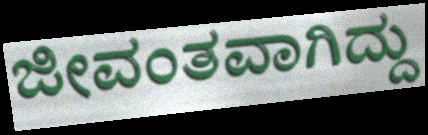
ಜೀವಂತವಾಗಿದ್ದು